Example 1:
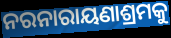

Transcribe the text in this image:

ନରନାରାୟଣାଶ୍ରମକୁ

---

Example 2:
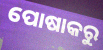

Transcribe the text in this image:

ପୋଷାକରୁ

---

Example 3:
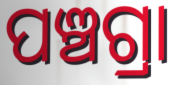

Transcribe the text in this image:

ପଞ୍ଚଗ୍ରା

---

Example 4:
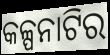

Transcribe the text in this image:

କଳ୍ପନାଟିର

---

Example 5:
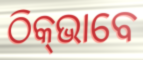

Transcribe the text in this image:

ଠିକ୍‍ଭାବେ